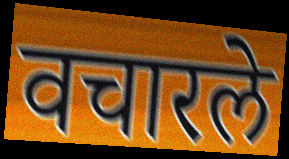
वचारले